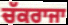
ਚੱਕਰਾਜਾ